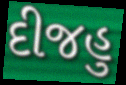
દીજહુ